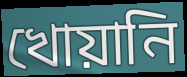
খোয়ানি